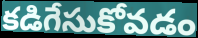
కడిగేసుకోవడం